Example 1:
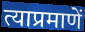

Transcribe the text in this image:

त्याप्रमाणें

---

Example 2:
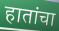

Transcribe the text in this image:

हातांचा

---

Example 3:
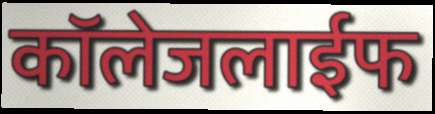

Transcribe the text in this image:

कॉलेजलाईफ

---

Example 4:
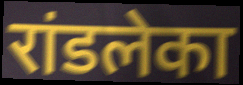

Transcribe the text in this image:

रांडलेका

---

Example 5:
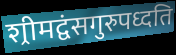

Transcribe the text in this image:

श्रीमद्वंसगुरुपध्दति